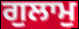
ਗੁਲਾਮੁ